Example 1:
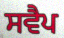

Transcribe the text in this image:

ਸਵੈਪ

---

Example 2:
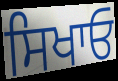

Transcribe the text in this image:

ਸਿਖਾਓ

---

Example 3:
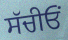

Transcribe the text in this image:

ਸੱਚੀਓਂ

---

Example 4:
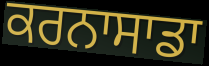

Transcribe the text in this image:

ਕਰਨਾਸਾਡਾ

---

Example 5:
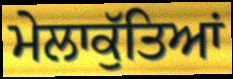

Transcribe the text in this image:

ਮੇਲਾਕੁੱਤਿਆਂ